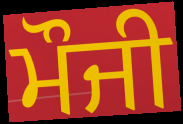
ਮੌਜੀ